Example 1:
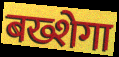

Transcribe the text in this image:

बख्शेगा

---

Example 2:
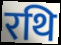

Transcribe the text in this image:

रथि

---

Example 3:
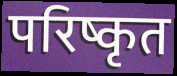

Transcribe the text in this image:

परिष्कृत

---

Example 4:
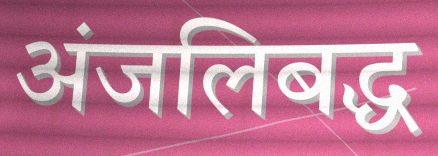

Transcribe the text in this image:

अंजलिबद्ध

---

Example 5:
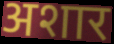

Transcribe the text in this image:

अशार